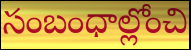
సంబంధాల్లోంచి